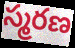
స్మరణ